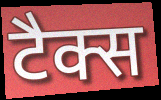
टैक्स